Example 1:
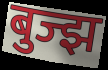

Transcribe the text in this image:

बुज्झ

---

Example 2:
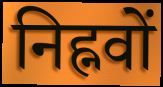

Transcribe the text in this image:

निह्नवों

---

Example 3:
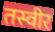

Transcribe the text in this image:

तस्‍वीर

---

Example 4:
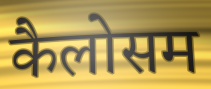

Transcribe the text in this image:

कैलोसम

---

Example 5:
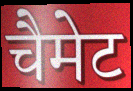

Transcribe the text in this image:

चैमेट